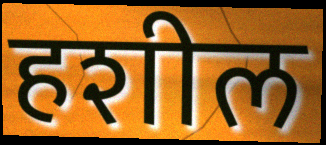
हशील